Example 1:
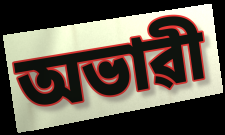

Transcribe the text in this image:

অভাৱী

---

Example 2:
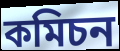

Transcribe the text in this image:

কমিচন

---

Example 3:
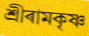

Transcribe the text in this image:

শ্ৰীৰামকৃষ্ণ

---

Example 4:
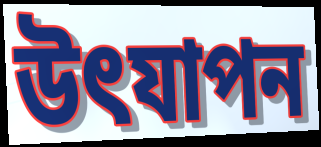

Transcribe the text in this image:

উৎযাপন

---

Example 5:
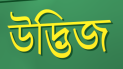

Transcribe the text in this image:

উদ্ভিজ